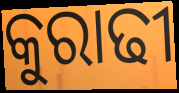
କୁରାଢୀ